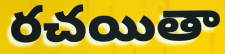
రచయితా